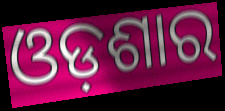
ଓଡ଼ଶାର